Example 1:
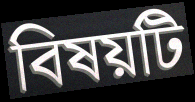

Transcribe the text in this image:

বিষয়টি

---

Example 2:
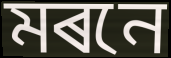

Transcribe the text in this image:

মৰনে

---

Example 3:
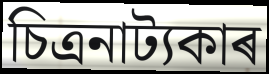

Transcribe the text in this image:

চিত্ৰনাট্যকাৰ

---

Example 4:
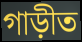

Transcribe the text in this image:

গাড়ীত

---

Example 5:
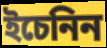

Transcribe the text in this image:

ইচেনিন